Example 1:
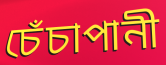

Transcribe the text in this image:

চেঁচাপানী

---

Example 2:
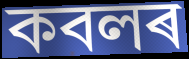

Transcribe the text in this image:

কবলৰ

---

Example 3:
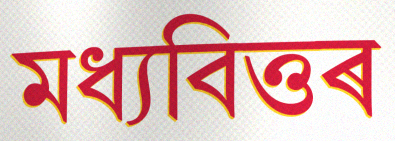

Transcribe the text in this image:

মধ্যবিত্তৰ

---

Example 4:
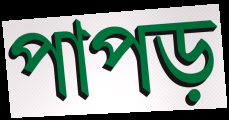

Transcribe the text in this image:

পাপড়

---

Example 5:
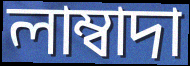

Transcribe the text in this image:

লাম্বাদা